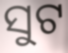
ସୁଟ